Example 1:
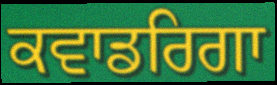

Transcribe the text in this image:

ਕਵਾਡਰਿਗਾ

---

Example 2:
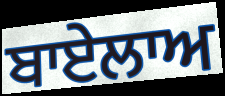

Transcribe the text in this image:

ਬਾਏਲਾਅ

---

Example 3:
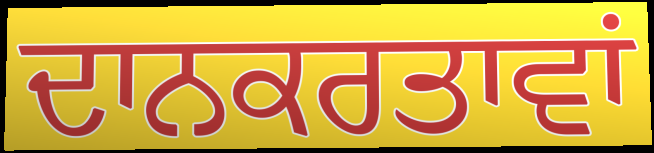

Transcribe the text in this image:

ਦਾਨਕਰਤਾਵਾਂ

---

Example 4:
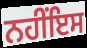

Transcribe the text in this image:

ਨਹੀਂਇਸ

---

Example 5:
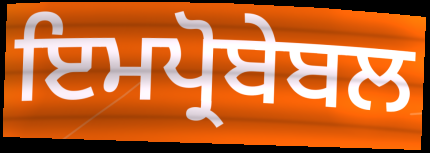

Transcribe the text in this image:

ਇਮਪ੍ਰੋਬੇਬਲ